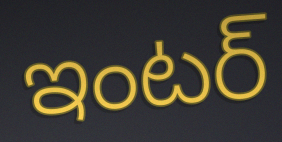
ఇంటర్